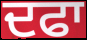
ਦਫਾ